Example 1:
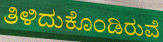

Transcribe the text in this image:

ತಿಳಿದುಕೊಂಡಿರುವೆ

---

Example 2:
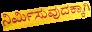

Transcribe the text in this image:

ನಿರ್ಮಿಸುವುದಕ್ಕಾಗಿ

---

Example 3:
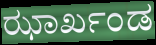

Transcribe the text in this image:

ಝಾರ್ಖಂಡ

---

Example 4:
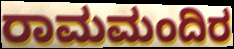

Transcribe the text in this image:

ರಾಮಮಂದಿರ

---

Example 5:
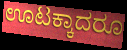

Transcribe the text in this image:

ಊಟಕ್ಕಾದರೂ